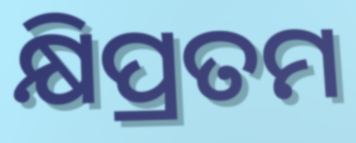
କ୍ଷିପ୍ରତମ